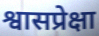
श्वासप्रेक्षा